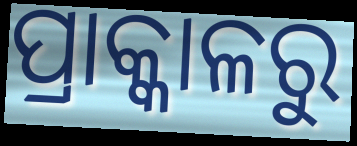
ପ୍ରାକ୍କାଳରୁ